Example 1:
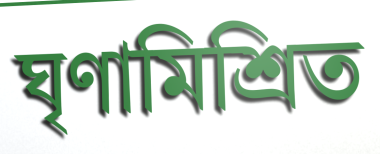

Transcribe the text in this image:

ঘৃণামিশ্রিত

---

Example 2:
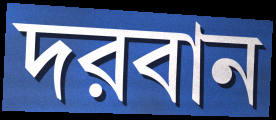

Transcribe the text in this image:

দরবান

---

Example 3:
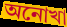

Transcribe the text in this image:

অনোখা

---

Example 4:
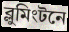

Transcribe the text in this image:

ব্লুমিংটনে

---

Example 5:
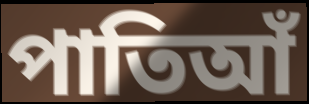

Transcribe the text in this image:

পাতিআঁ